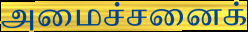
அமைச்சனைக்